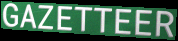
GAZETTEER